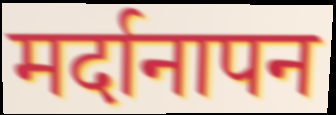
मर्दानापन